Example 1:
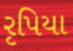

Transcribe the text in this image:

રૃપિયા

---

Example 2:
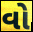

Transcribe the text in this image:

વો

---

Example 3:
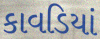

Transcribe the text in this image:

કાવડિયાં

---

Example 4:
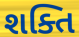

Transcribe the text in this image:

શક્તિ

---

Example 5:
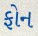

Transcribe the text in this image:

ફોન